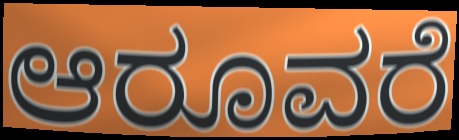
ಆರೂವರೆ